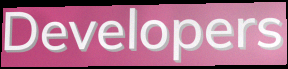
Developers